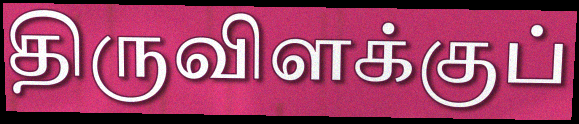
திருவிளக்குப்